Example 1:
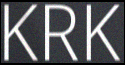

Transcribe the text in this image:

KRK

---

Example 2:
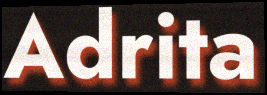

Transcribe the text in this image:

Adrita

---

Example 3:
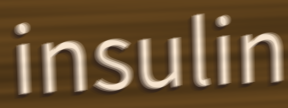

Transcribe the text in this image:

insulin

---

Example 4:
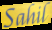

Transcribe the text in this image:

Sahil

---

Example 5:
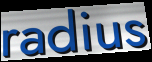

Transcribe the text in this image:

radius